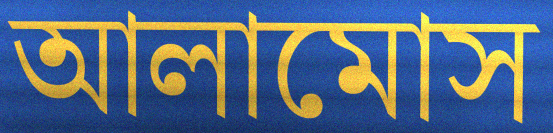
আলামোস